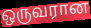
ஒருவரான